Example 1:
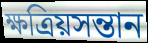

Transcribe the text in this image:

ক্ষত্রিয়সন্তান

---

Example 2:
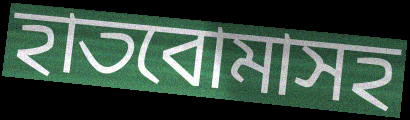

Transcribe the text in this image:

হাতবোমাসহ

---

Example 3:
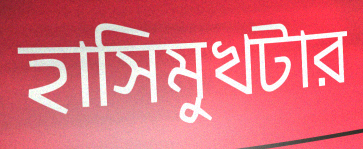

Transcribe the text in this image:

হাসিমুখটার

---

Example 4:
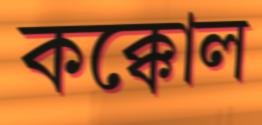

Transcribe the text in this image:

কক্কোল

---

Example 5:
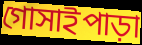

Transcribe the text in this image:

গোসাইপাড়া